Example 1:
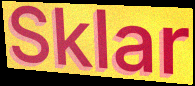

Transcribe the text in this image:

Sklar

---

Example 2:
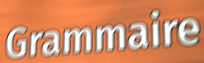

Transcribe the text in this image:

Grammaire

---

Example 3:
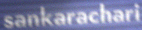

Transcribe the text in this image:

sankarachari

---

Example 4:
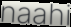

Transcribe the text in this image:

naahi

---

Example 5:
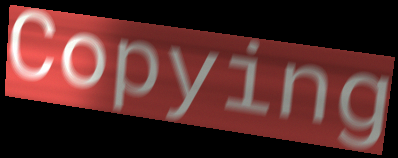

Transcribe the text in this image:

Copying